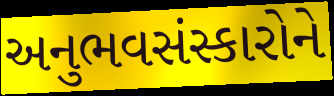
અનુભવસંસ્કારોને